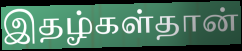
இதழ்கள்தான்